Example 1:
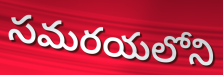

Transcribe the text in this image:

సమరయలోని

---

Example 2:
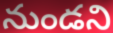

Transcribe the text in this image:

నుండని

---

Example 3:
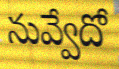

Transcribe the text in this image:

నువ్వేదో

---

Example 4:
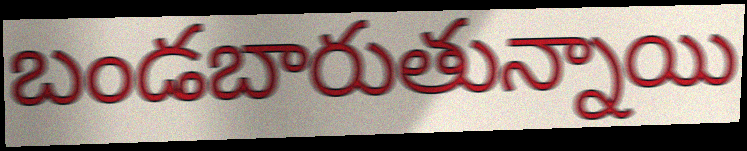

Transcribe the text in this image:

బండబారుతున్నాయి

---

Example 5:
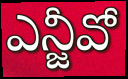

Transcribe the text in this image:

ఎన్జీవో